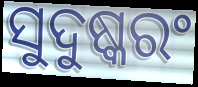
ସୁଦୁଷ୍କରଂ